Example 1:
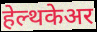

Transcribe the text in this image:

हेल्थकेअर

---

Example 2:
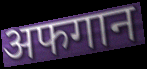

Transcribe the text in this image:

अफगान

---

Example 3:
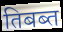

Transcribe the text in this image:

तिबब्त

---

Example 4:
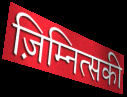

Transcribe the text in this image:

ज़िम्नित्सकी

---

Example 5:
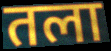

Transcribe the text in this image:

तला